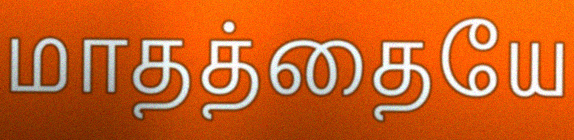
மாதத்தையே